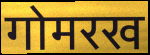
गोमरख